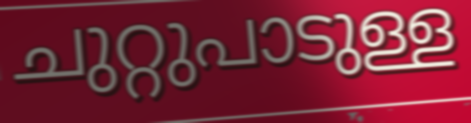
ചുറ്റുപാടുള്ള